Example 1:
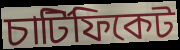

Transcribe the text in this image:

চাৰ্টিফিকেট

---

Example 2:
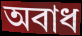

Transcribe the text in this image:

অবাধ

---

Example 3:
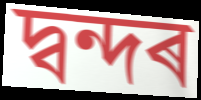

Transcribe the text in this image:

দ্বন্দৰ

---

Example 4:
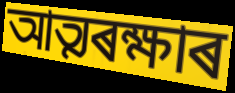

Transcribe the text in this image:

আত্মৰক্ষাৰ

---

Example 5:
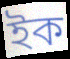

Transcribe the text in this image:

ইক